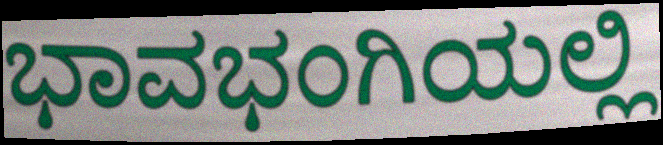
ಭಾವಭಂಗಿಯಲ್ಲಿ